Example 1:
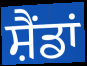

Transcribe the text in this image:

ਸ਼ੈਂਡਾਂ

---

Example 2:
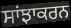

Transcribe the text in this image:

ਸਾਂਝਾਕਰਨ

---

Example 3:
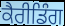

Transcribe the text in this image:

ਕੈਰੀਡਿੰਗ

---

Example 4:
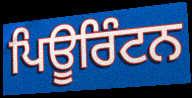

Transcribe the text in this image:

ਪਿਊਰਿੰਟਨ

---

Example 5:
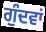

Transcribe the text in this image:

ਗੁੰਦਵਾਂ